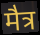
मैत्र